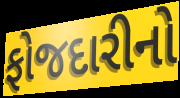
ફોજદારીનો